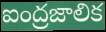
ఐంద్రజాలిక